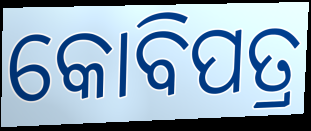
କୋବିପତ୍ର